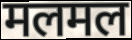
मलमल